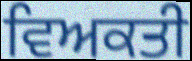
ਵਿਅਕਤੀ